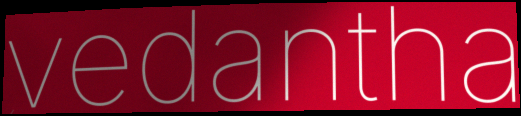
vedantha